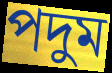
পদুম